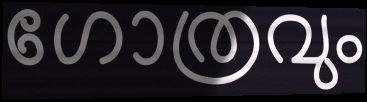
ഗോത്രവും